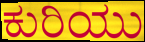
ಕುರಿಯು